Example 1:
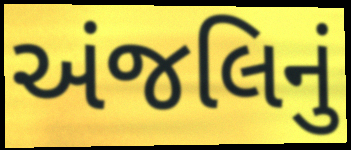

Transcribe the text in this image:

અંજલિનું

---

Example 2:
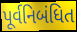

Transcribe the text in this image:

પૂર્વનિબંધિત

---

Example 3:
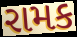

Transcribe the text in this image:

રામક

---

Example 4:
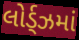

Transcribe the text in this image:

લોર્ડ્ઝમાં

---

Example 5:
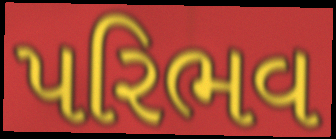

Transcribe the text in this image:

પરિભવ